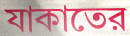
যাকাতের